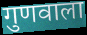
गुणवाला